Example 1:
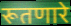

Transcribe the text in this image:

रूतणारे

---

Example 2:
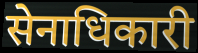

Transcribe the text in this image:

सेनाधिकारी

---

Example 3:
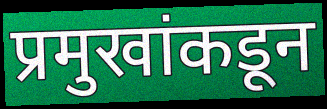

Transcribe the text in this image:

प्रमुखांकडून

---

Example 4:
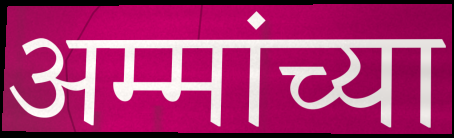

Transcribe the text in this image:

अम्मांच्या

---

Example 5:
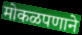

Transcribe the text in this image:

मोकळपणाने